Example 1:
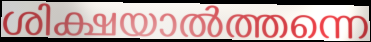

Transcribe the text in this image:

ശിക്ഷയാൽത്തന്നെ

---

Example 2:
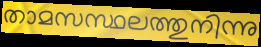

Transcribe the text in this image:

താമസസ്ഥലത്തുനിന്നു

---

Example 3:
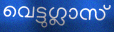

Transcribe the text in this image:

വെട്ടുഗ്ലാസ്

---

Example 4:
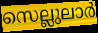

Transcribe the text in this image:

സെല്ലുലാർ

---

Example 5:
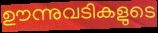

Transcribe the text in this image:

ഊന്നുവടികളുടെ